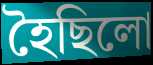
হৈছিলো